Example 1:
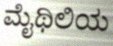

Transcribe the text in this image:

ಮೈಥಿಲಿಯ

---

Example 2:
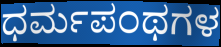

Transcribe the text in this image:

ಧರ್ಮಪಂಥಗಳ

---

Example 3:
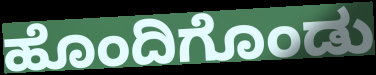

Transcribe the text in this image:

ಹೊಂದಿಗೊಂಡು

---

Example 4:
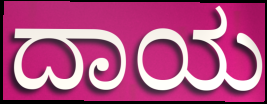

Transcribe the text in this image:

ದಾಯ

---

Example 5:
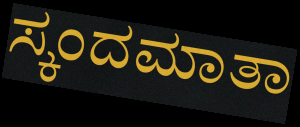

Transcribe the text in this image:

ಸ್ಕಂದಮಾತಾ